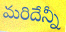
మరిదేన్నీ